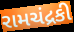
રામચંદ્રકી